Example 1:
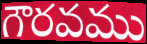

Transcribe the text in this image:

గౌరవము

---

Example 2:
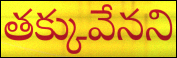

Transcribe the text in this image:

తక్కువేనని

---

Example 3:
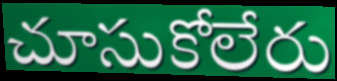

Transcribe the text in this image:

చూసుకోలేరు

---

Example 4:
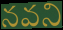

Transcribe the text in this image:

నవని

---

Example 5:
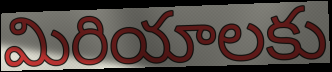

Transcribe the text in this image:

మిరియాలకు